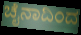
ಚೈನಾದಿಂದ